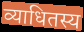
व्याधितस्य